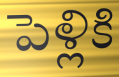
పెళ్లికి